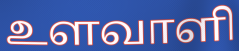
உளவாளி